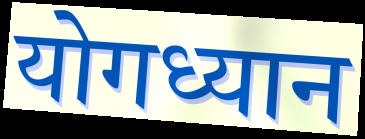
योगध्यान